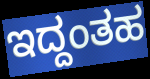
ಇದ್ದಂತಹ